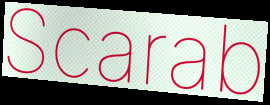
Scarab